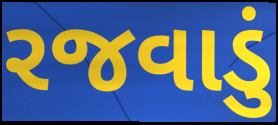
રજવાડું